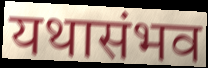
यथासंभव